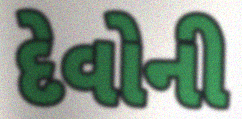
દેવોની